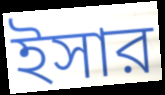
ইসার